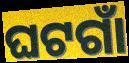
ଘଟଗାଁ